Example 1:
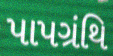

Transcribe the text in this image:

પાપગ્રંથિ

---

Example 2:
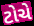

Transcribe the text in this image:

ટોચે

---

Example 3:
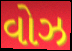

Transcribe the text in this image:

વોઝ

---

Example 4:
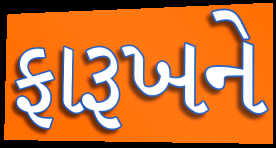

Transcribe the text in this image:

ફારૂખને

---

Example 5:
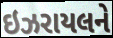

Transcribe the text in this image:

ઇઝરાયલને